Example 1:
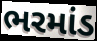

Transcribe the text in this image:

ભરમાંડ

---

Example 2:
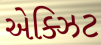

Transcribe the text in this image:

એક્ઝિટ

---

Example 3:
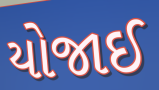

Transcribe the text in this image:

યોજાઈ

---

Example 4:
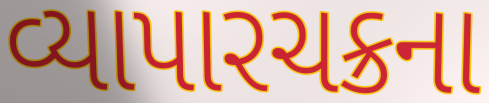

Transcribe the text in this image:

વ્યાપારચક્રના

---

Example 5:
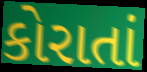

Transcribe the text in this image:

કોરાતાં